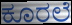
ಕೂರಲೆ